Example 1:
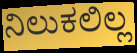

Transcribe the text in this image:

ನಿಲುಕಲಿಲ್ಲ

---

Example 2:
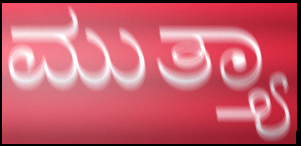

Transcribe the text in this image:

ಮುತ್ತ್ಯಾ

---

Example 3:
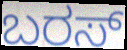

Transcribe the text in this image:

ಬರಸ್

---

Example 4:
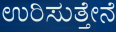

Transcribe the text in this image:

ಉರಿಸುತ್ತೇನೆ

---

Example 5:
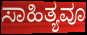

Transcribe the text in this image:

ಸಾಹಿತ್ಯವೂ